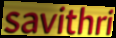
savithri